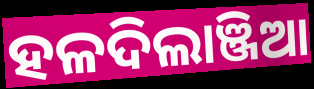
ହଳଦିଲାଞ୍ଜିଆ